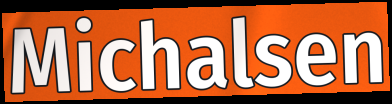
Michalsen